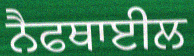
ਨੈਫਥਾਈਲ